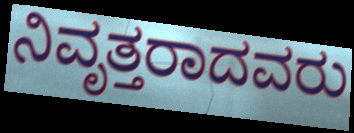
ನಿವೃತ್ತರಾದವರು